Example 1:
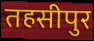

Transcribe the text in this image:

तहसीपुर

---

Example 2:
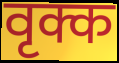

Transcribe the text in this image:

वृक्क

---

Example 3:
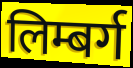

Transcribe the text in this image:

लिम्बर्ग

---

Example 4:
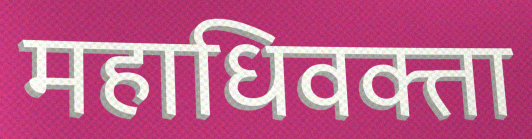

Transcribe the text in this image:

महाधिवक्ता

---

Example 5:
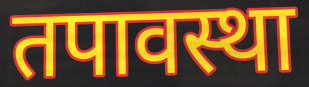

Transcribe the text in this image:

तपावस्था